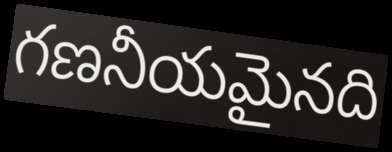
గణనీయమైనది